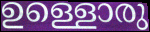
ഉള്ളൊരു